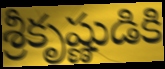
శ్రీకృష్ణుడికి